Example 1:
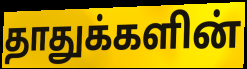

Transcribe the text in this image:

தாதுக்களின்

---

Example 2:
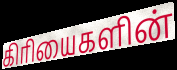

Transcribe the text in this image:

கிரியைகளின்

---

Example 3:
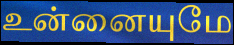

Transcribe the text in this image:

உன்னையுமே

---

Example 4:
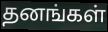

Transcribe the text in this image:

தனங்கள்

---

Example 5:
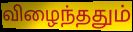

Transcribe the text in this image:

விழைந்ததும்